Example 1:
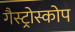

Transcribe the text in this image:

गैस्ट्रोस्कोप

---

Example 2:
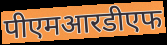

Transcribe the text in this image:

पीएमआरडीएफ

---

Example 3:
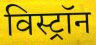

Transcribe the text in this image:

विस्ट्रॉन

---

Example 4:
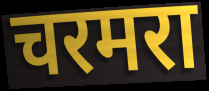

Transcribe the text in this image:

चरमरा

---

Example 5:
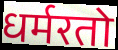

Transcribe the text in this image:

धर्मरतो